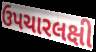
ઉપચારલક્ષી